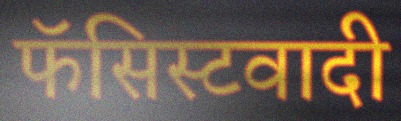
फॅसिस्टवादी